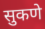
सुकणे